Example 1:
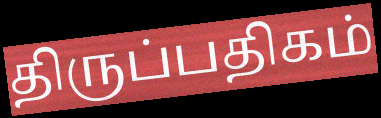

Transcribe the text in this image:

திருப்பதிகம்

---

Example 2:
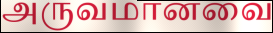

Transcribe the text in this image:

அருவமானவை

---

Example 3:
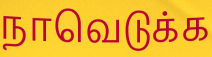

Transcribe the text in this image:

நாவெடுக்க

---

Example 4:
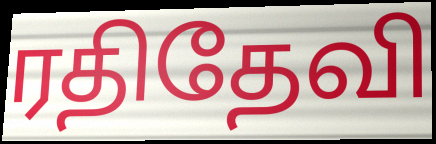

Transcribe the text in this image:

ரதிதேவி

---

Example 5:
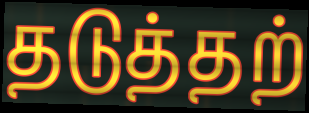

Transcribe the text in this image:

தடுத்தற்